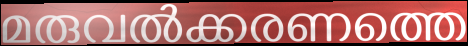
മരുവൽക്കരണത്തെ